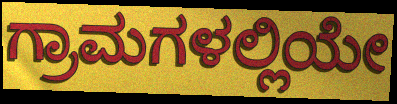
ಗ್ರಾಮಗಳಲ್ಲಿಯೇ